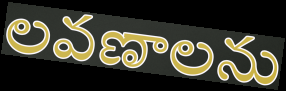
లవణాలను